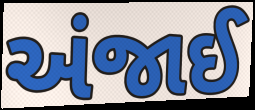
અંજાઈ